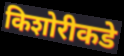
किशोरीकडे